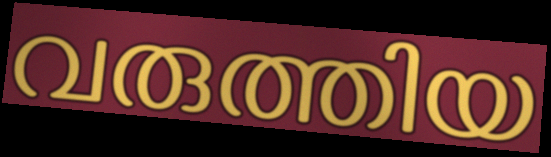
വരുത്തിയ